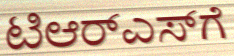
ಟಿಆರ್‌ಎಸ್‌ಗೆ